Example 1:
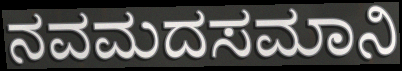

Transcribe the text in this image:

ನವಮದಸಮಾನಿ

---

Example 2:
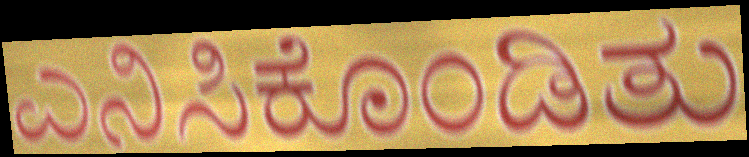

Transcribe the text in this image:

ಎನಿಸಿಕೊಂಡಿತು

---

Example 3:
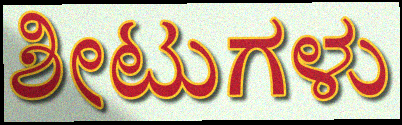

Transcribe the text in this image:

ಶೀಟುಗಳು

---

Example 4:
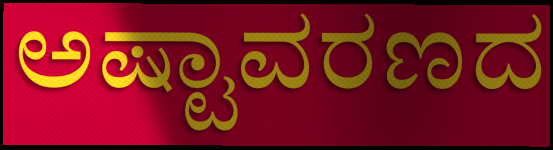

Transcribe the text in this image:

ಅಷ್ಟಾವರಣದ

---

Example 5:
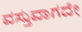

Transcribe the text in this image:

ವಸ್ತುವಾಗದೇ